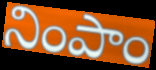
నింపాం